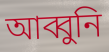
আব্বুনি